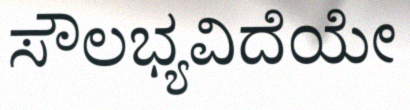
ಸೌಲಭ್ಯವಿದೆಯೇ